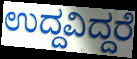
ಉದ್ದವಿದ್ದರೆ